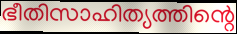
ഭീതിസാഹിത്യത്തിന്റെ